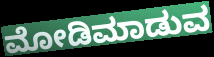
ಮೋಡಿಮಾಡುವ